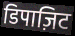
डिपाज़िट